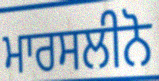
ਮਾਰਸਲੀਨੋ